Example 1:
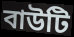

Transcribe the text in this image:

বাউটি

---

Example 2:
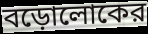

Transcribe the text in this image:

বড়োলোকের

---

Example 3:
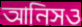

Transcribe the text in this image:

আনিসও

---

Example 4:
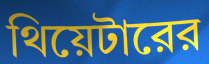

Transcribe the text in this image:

থিয়েটারের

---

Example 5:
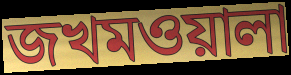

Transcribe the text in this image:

জখমওয়ালা